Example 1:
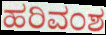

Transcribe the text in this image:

ಹರಿವಂಶ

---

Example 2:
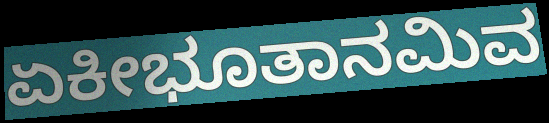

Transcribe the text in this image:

ಏಕೀಭೂತಾನಮಿವ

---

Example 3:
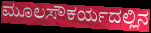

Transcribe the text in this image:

ಮೂಲಸೌಕರ್ಯದಲ್ಲಿನ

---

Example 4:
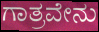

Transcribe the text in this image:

ಗಾತ್ರವೇನು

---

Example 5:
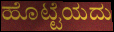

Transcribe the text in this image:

ಹೊಟ್ಟೆಯದು